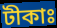
টীকাঃ